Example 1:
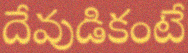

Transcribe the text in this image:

దేవుడికంటే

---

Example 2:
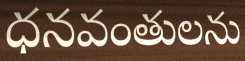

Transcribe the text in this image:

ధనవంతులను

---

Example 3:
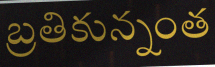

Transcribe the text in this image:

బ్రతికున్నంత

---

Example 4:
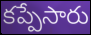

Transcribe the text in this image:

కప్పేసారు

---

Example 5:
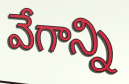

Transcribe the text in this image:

వేగాన్ని